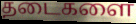
தடைகளை